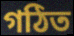
গঠিত